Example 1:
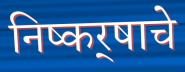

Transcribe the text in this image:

निष्कर्षाचे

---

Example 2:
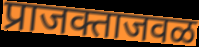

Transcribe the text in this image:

प्राजक्ताजवळ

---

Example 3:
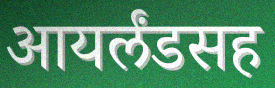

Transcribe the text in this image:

आयर्लंडसह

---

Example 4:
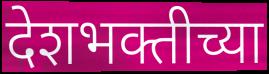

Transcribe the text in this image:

देशभक्तीच्या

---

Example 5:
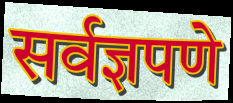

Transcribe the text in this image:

सर्वज्ञपणे